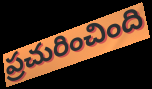
ప్రచురించింది